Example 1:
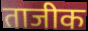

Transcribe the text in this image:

ताजीक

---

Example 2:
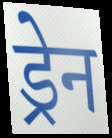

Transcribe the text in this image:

ड्रेन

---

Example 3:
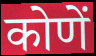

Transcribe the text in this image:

कोणें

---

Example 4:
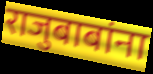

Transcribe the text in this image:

राजुबाबांना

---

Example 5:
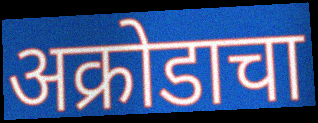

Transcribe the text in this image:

अक्रोडाचा